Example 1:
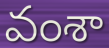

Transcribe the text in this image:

వంశా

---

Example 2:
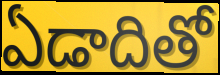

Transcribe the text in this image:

ఏడాదితో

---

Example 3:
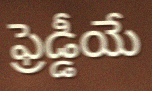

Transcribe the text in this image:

ఫ్రెడ్డీయే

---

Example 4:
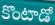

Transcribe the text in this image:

కొంటాడో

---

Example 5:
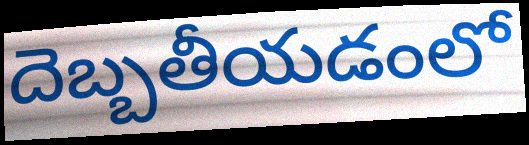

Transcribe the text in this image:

దెబ్బతీయడంలో